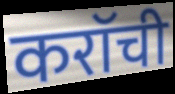
करॉची